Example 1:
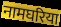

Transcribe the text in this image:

नामघरिया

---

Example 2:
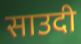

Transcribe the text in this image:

साउदी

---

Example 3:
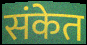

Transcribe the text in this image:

संकेत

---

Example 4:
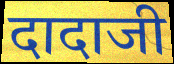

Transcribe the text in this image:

दादाजी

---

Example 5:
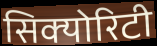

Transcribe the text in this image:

सिक्योरिटी